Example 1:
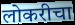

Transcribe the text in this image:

लोकरीचा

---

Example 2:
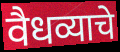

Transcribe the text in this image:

वैधव्याचे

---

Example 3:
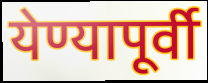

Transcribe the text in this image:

येण्यापूर्वी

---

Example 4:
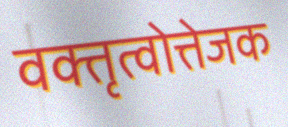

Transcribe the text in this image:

वक्तृत्वोत्तेजक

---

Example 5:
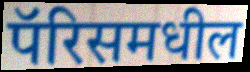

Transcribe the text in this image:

पॅरिसमधील